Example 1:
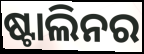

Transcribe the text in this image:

ଷ୍ଟାଲିନର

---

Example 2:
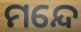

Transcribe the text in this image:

ମନ୍ଦେ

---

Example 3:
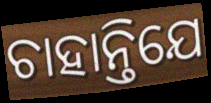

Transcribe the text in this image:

ଚାହାନ୍ତିଯେ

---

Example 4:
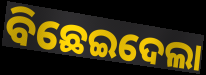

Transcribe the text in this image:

ବିଛେଇଦେଲା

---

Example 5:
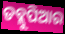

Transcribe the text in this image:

ଡବ୍ଲୁପିଆର